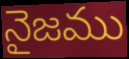
నైజము